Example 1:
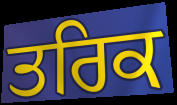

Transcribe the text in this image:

ਤਰਿਕ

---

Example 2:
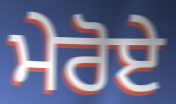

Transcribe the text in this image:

ਮੇਰੋਏ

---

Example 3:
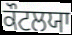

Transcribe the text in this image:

ਕੌਟਲਯਾ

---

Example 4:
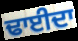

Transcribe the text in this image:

ਢਾਈਦਾ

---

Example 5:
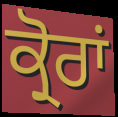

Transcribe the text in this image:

ਕ੍ਰੋਰਾਂ